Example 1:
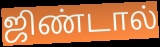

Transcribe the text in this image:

ஜிண்டால்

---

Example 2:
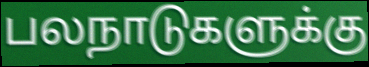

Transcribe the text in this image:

பலநாடுகளுக்கு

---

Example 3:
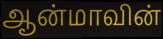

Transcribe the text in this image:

ஆன்மாவின்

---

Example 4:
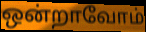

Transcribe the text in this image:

ஒன்றாவோம்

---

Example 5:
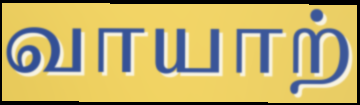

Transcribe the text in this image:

வாயாற்